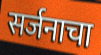
सर्जनाचा